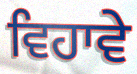
ਵਿਹਾਵੇ